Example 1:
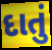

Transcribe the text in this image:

દાતું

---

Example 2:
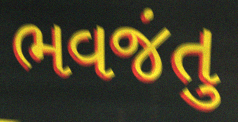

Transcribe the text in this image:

ભવજંતુ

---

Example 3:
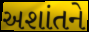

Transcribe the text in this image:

અશાંતને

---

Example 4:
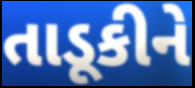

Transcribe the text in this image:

તાડૂકીને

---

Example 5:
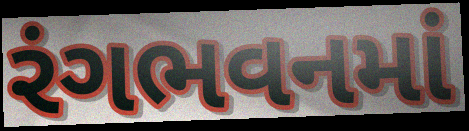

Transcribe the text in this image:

રંગભવનમાં